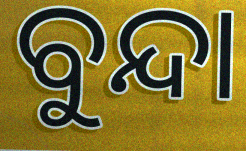
ବୁନ୍ଦା